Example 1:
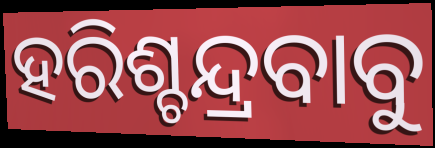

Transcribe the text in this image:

ହରିଶ୍ଚନ୍ଦ୍ରବାବୁ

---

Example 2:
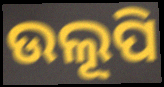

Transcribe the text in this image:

ଉଲୂପି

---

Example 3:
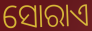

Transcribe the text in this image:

ସୋରାଏ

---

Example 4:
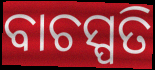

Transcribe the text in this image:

ବାଚସ୍ପତି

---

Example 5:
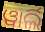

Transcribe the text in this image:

ୱାର୍ଲି